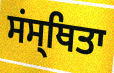
ਸਂਸ੍ਥਿਤਾ